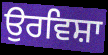
ਉਰਵਿਸ਼ਾ